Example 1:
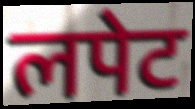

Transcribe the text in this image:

लपेट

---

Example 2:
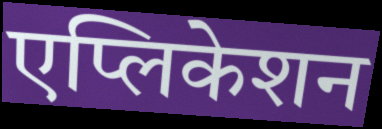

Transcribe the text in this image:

एप्लिकेशन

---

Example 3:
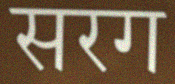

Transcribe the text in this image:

सरग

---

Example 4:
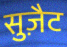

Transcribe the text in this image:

सुज़ैट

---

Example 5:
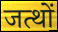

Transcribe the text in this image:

जत्थों